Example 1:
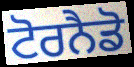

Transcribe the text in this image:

ਟੋਰਨੈਡੋ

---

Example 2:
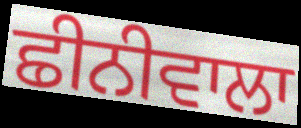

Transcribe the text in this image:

ਛੀਨੀਵਾਲਾ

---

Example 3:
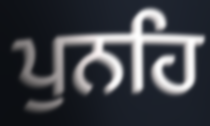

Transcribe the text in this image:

ਪੁਨਹਿ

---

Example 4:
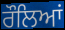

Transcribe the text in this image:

ਰੌਲਿਆਂ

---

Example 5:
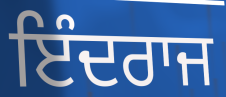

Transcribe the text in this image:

ਇੰਦਰਾਜ